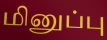
மினுப்பு